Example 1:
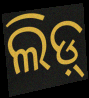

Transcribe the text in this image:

ଲିଡ଼୍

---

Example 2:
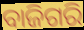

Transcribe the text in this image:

ବାଜିଗରି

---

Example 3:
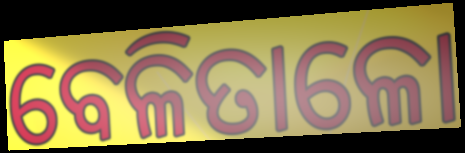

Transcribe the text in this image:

ବେଳିତାଳୋ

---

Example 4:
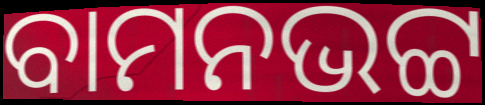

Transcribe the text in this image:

ବାମନଭଟ୍ଟ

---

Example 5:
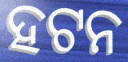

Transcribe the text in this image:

ହଟନ